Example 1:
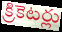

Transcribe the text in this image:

క్రికెటర్లు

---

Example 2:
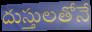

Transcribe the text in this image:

దుస్తులతోనే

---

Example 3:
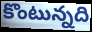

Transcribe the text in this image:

కొంటున్నది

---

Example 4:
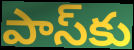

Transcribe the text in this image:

పాస్‌కు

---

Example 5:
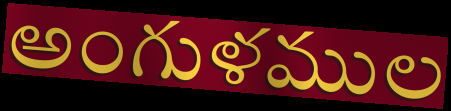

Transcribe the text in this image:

అంగుళముల